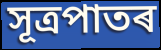
সূত্ৰপাতৰ